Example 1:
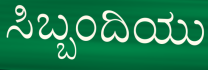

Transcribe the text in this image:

ಸಿಬ್ಬಂದಿಯು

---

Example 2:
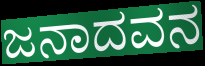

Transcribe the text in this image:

ಜನಾದವನ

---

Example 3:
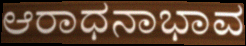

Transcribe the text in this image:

ಆರಾಧನಾಭಾವ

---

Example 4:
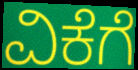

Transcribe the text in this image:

ವಿಕೆಗೆ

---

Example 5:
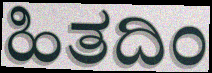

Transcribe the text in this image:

ಹಿತದಿಂ